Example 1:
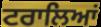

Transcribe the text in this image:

ਟਰਾਲਿਆਂ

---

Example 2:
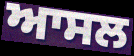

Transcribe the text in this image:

ਆਸਲ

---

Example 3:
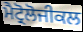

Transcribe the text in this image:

ਮੈਟ੍ਰੋਲੋਜੀਕਲ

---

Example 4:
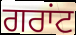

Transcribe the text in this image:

ਗਰਾਂਟ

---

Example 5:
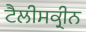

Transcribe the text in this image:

ਟੈਲੀਸਕ੍ਰੀਨ